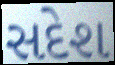
સદેશ